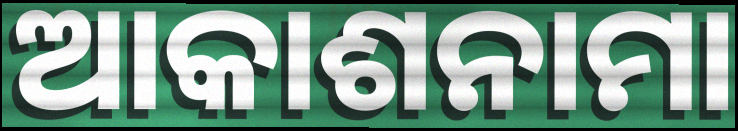
ଆକାଶନାମା